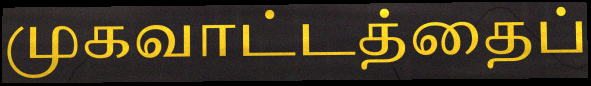
முகவாட்டத்தைப்